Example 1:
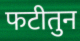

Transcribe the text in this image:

फटीतुन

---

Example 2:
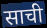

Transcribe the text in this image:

साची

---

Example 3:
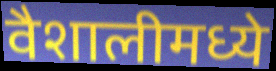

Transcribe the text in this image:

वैशालीमध्ये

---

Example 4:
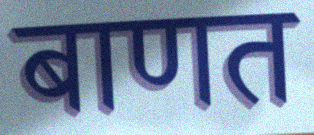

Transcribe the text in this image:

बाणत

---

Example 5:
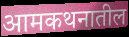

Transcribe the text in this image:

आमकथनातील